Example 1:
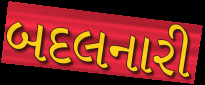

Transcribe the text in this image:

બદલનારી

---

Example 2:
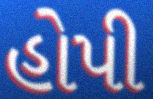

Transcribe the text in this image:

હોપી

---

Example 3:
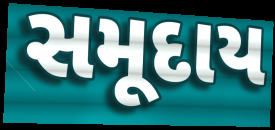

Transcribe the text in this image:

સમૂદાય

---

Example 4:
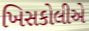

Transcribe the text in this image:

ખિસકોલીએ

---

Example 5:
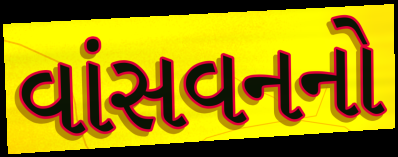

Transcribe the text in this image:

વાંસવનનો